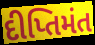
દીપ્તિમંત